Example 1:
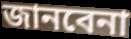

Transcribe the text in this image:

জানবেনা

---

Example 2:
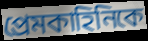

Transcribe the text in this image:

প্রেমকাহিনিকে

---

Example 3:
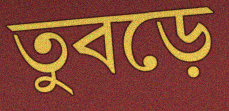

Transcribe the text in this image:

তুবড়ে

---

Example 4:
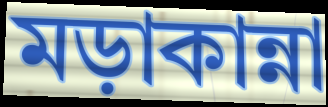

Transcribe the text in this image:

মড়াকান্না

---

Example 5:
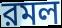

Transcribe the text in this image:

রমল